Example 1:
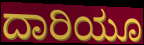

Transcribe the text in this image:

ದಾರಿಯೂ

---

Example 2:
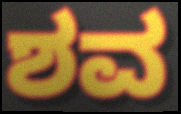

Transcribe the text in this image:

ಶವ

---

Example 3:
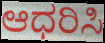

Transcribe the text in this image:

ಆಧರಿಸಿ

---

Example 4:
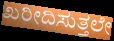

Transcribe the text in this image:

ಖರೀದಿಸುತ್ತಲೇ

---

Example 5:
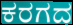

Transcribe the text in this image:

ಕರಗದ